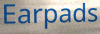
Earpads